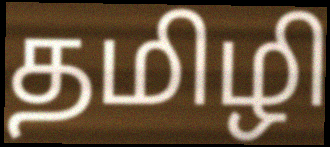
தமிழி